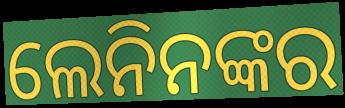
ଲେନିନଙ୍କର